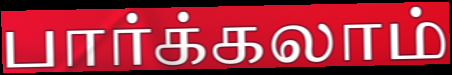
பார்க்கலாம்